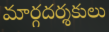
మార్గదర్శకులు